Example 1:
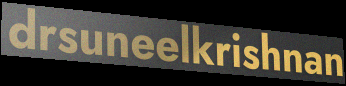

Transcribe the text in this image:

drsuneelkrishnan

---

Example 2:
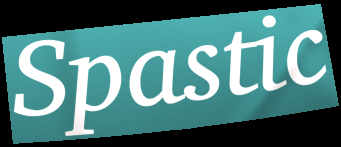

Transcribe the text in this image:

Spastic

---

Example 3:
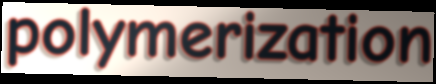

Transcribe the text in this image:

polymerization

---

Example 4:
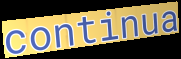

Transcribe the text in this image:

continua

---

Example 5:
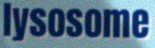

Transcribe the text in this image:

lysosome